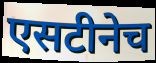
एसटीनेच